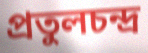
প্রতুলচন্দ্র